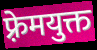
फ़्रेमयुक्त